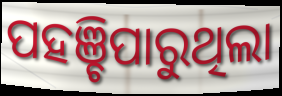
ପହଞ୍ଚିପାରୁଥିଲା